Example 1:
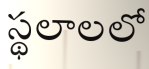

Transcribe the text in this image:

స్థలాలలో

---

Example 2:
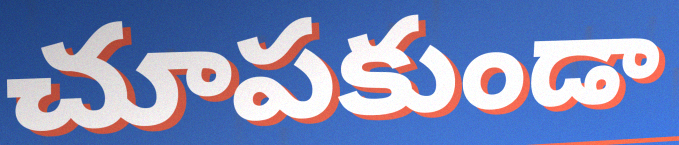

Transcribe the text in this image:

చూపకుండా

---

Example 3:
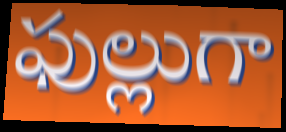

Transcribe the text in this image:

ఫుల్లుగా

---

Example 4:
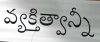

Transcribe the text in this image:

వ్యక్తిత్వాన్నీ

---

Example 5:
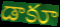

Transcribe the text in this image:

డాకూ